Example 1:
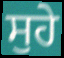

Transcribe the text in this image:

ਸੁਹੇ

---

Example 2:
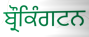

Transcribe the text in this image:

ਬ੍ਰੌਕਿੰਗਟਨ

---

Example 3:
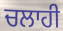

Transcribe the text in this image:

ਚਲਾਹੀ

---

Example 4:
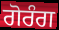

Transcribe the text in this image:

ਗੋਰੰਗ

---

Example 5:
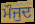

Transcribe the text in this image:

ਮੌਜੁਦ